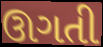
ઊગતી